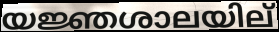
യജ്ഞശാലയില്